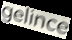
gelince